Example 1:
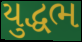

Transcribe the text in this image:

યુદ્ધભ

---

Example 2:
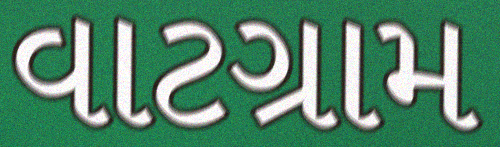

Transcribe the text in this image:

વાટગ્રામ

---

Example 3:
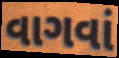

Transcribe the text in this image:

વાગવાં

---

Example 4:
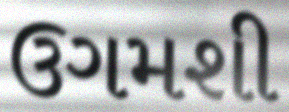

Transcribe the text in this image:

ઉગમશી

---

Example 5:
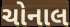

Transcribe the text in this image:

ચોનાલ